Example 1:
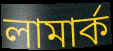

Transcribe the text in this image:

লামার্ক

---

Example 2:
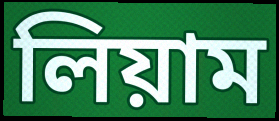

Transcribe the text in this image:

লিয়াম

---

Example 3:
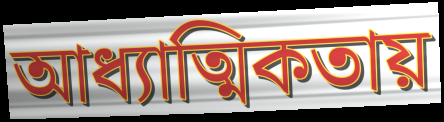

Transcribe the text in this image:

আধ্যাত্মিকতায়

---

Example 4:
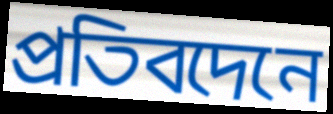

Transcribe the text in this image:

প্রতিবদেনে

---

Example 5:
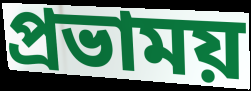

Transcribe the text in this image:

প্রভাময়